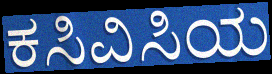
ಕಸಿವಿಸಿಯ